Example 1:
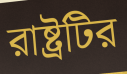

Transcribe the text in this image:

রাষ্ট্রটির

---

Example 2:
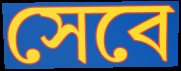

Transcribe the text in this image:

সেবে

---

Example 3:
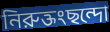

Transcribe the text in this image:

নিরুক্তংছন্দো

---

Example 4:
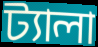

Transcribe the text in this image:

ট্যালা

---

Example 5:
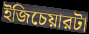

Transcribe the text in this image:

ইজিচেয়ারটা